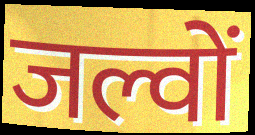
जल्वों